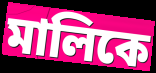
মালিকে